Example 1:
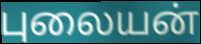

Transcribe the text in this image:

புலையன்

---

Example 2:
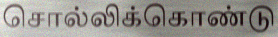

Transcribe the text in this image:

சொல்லிக்கொண்டு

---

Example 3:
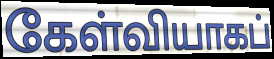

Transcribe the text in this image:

கேள்வியாகப்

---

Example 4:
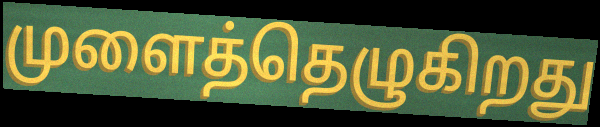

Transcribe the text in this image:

முளைத்தெழுகிறது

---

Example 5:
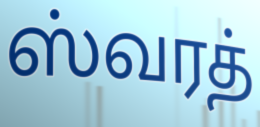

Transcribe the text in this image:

ஸ்வரத்